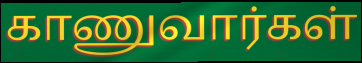
காணுவார்கள்